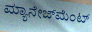
ಮ್ಯಾನೇಜ್‍ಮೆಂಟ್